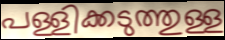
പള്ളിക്കടുത്തുള്ള